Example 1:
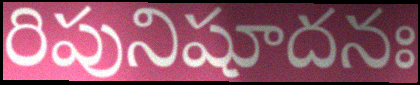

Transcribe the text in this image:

రిపునిషూదనః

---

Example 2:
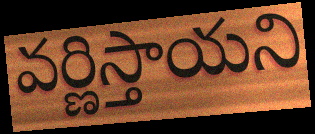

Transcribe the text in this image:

వర్ణిస్తాయని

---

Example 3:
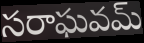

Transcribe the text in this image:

సరాఘవమ్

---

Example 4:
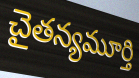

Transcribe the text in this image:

చైతన్యమూర్తి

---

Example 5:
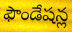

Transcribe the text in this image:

ఫౌండేషన్ల